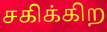
சகிக்கிற